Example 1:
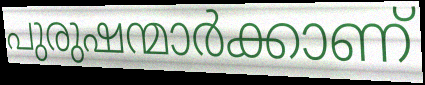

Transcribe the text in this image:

പുരുഷന്മാർക്കാണ്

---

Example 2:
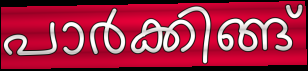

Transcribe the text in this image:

പാർക്കിങ്ങ്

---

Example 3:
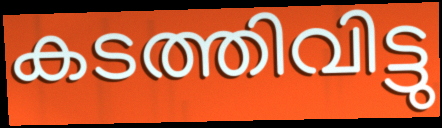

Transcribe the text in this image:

കടത്തിവിട്ടു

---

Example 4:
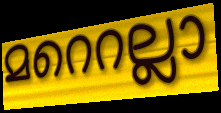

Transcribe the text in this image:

മറെറല്ലാ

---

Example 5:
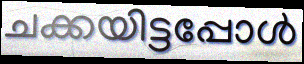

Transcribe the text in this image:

ചക്കയിട്ടപ്പോൾ